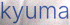
kyuma